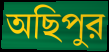
অছিপুর